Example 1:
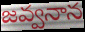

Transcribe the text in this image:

జవ్వనాన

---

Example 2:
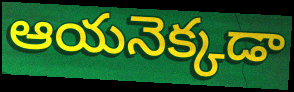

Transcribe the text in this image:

ఆయనెక్కడా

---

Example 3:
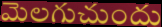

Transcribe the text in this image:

మెలగుచుందు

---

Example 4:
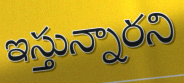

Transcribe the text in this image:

ఇస్తున్నారని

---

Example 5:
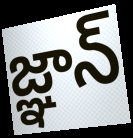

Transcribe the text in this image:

జ్ఞాన్